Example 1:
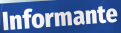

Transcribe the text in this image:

Informante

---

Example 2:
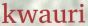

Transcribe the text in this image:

kwauri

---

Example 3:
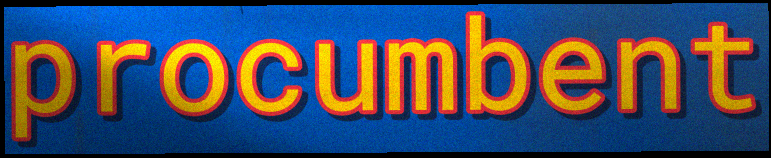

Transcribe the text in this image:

procumbent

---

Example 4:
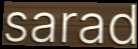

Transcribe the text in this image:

sarad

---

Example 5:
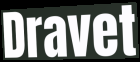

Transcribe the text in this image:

Dravet